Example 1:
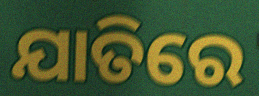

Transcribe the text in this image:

ଯାତିରେ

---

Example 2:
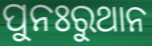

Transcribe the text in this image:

ପୁନଃରୁଥାନ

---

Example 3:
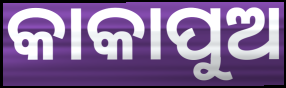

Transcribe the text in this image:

କାକାପୁଅ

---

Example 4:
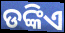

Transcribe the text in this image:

ଡଙ୍କିଏ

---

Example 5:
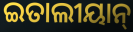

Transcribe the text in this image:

ଇତାଲୀୟାନ୍